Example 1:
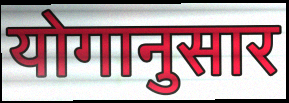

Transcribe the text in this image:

योगानुसार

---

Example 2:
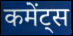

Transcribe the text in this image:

कमेंट्स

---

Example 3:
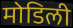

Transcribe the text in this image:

मोडिली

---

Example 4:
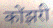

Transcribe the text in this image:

कोंझरी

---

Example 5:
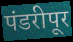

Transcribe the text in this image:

पंडरीपूर